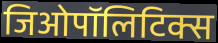
जिओपॉलिटिक्स